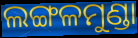
ଲଙ୍ଗଳମୁଣ୍ଡା